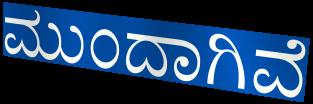
ಮುಂದಾಗಿವೆ